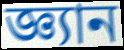
জ্ঞ্যান